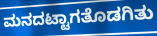
ಮನದಟ್ಟಾಗತೊಡಗಿತು